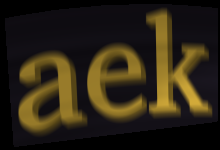
aek